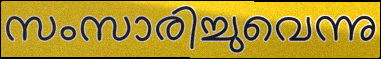
സംസാരിച്ചുവെന്നു